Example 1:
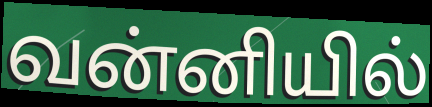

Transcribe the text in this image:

வன்னியில்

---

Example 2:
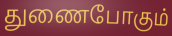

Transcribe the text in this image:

துணைபோகும்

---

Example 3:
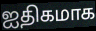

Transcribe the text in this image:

ஐதிகமாக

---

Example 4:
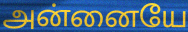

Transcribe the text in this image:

அன்னையே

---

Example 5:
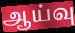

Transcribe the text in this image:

ஆய்வு